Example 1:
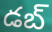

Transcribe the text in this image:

డబ్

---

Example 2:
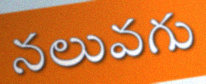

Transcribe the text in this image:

నలువగు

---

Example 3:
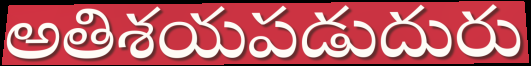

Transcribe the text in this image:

అతిశయపడుదురు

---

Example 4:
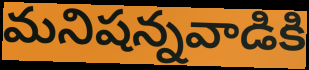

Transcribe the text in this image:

మనిషన్నవాడికి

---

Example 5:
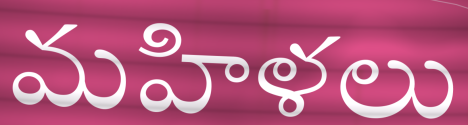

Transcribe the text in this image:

మహిళలు